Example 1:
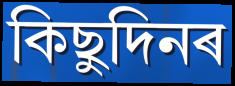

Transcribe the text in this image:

কিছুদিনৰ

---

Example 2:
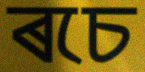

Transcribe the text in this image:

ৰচে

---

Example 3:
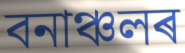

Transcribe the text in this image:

বনাঞ্চলৰ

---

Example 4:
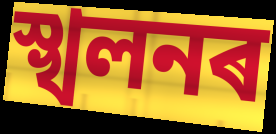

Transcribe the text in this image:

স্খলনৰ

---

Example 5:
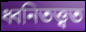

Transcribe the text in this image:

ধ্বনিতত্ত্বত